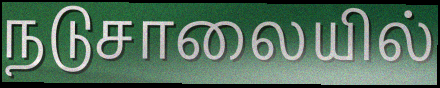
நடுசாலையில்